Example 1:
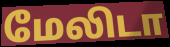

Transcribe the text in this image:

மேலிடா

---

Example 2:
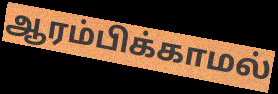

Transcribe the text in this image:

ஆரம்பிக்காமல்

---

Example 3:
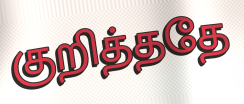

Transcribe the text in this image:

குறித்ததே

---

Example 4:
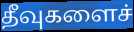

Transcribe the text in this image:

தீவுகளைச்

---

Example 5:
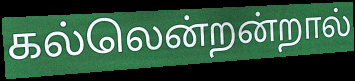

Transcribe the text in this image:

கல்லென்றன்றால்